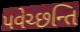
પવેચ્છન્તિ